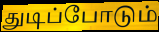
துடிப்போடும்